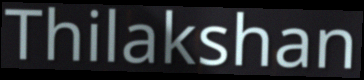
Thilakshan